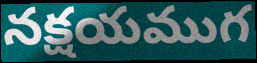
నక్షయముగ